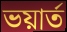
ভয়ার্ত